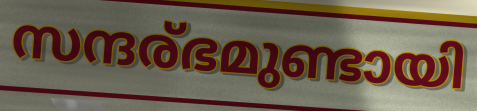
സന്ദര്ഭമുണ്ടായി